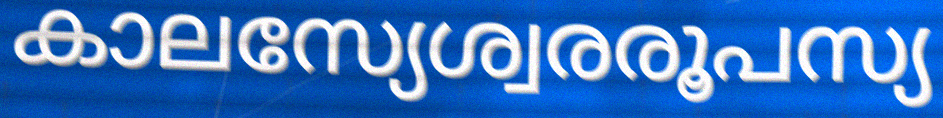
കാലസ്യേശ്വരരൂപസ്യ